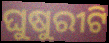
ଘୁଷୁରୀଟି